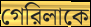
গেরিলাকে